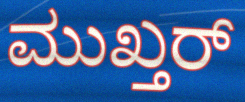
ಮುಖ್ತರ್